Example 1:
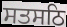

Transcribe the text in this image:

ਸਤਸਠਿ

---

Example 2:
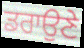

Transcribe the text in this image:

ਡਰਾਉਣੇ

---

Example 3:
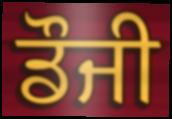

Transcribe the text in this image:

ਡੌਜੀ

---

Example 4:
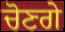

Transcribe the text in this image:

ਚੋਣਗੇ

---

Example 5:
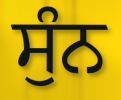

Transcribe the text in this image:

ਸੁੰਨ